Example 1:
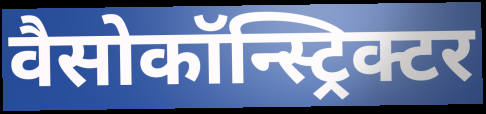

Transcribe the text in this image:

वैसोकॉन्स्ट्रिक्टर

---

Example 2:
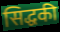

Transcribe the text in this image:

सिद्धकी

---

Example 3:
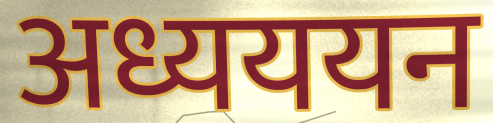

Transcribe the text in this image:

अध्यययन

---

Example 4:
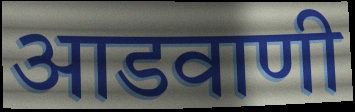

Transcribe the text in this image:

आडवाणी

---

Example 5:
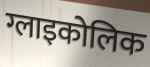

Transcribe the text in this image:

ग्लाइकोलिक